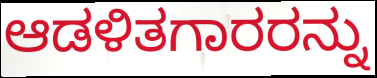
ಆಡಳಿತಗಾರರನ್ನು